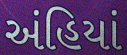
અંહિયાં